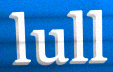
lull